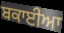
ਬਕਾਈਆ